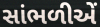
સાંભળીએં